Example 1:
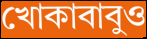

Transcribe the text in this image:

খোকাবাবুও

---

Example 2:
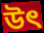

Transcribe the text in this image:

উৎ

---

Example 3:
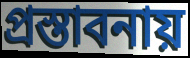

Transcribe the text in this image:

প্রস্তাবনায়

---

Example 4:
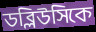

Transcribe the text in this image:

ডব্লিউসিকে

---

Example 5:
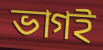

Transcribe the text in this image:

ভাগই